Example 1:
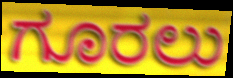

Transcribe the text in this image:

ಗೂರಲು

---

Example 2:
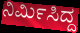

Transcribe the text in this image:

ನಿರ್ಮಿಸಿದ್ದ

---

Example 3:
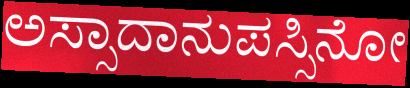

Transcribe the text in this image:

ಅಸ್ಸಾದಾನುಪಸ್ಸಿನೋ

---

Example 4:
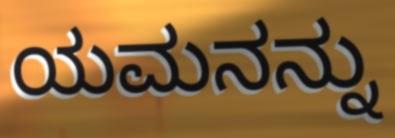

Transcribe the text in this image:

ಯಮನನ್ನು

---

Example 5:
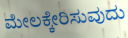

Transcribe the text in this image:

ಮೇಲಕ್ಕೇರಿಸುವುದು